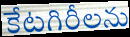
కేటగిరీలను